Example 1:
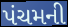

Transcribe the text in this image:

પંચમની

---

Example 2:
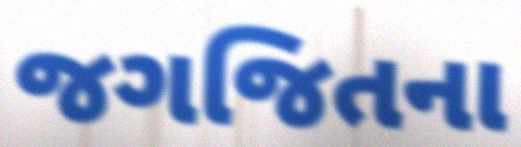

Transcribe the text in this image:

જગજિતના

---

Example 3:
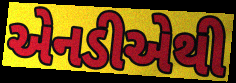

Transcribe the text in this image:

એનડીએથી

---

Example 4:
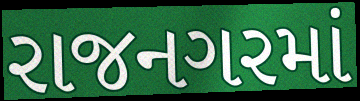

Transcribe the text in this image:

રાજનગરમાં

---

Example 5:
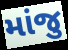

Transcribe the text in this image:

માંજુ